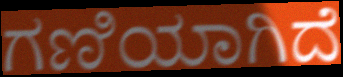
ಗಣಿಯಾಗಿದೆ